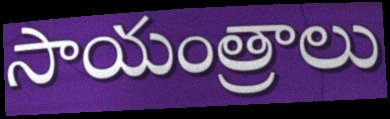
సాయంత్రాలు